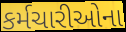
કર્મચારીઓના